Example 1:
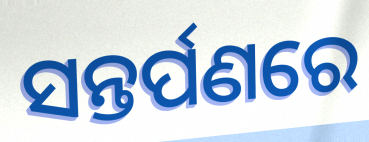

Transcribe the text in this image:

ସନ୍ତର୍ପଣରେ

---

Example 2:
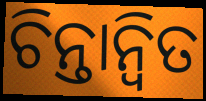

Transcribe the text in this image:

ଚିନ୍ତାନ୍ୱିତ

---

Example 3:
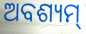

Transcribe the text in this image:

ଅବଶ୍ୟମ୍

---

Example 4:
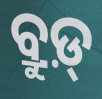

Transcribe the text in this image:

ବ୍ରୁଡ଼୍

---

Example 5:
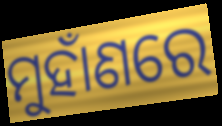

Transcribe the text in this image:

ମୁହାଁଣରେ